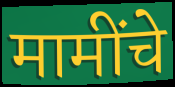
मामींचे